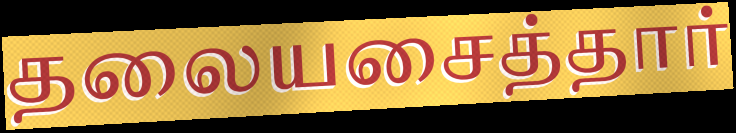
தலையசைத்தார்